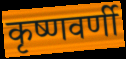
कृष्णवर्णी